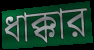
ধাক্কার